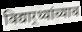
विद्यार्थ्यांच्याच